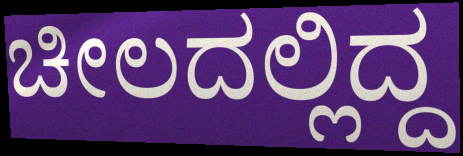
ಚೀಲದಲ್ಲಿದ್ದ